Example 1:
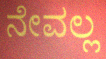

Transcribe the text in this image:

ನೇವಲ್ಲ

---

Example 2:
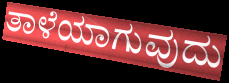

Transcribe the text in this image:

ತಾಳೆಯಾಗುವುದು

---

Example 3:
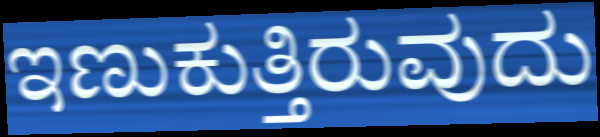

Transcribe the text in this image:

ಇಣುಕುತ್ತಿರುವುದು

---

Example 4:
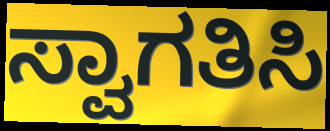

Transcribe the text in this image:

ಸ್ವಾಗತಿಸಿ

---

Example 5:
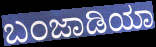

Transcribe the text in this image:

ಬಂಜಾಡಿಯಾ